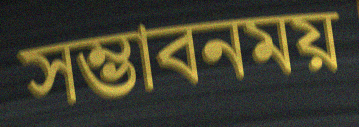
সম্ভাবনময়